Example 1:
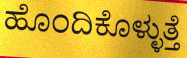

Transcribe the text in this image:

ಹೊಂದಿಕೊಳ್ಳುತ್ತೆ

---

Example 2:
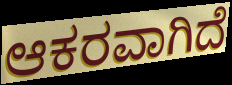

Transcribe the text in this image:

ಆಕರವಾಗಿದೆ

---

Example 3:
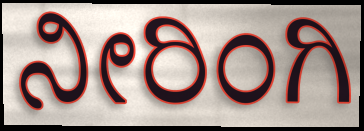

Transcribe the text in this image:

ನೀರಿಂಗಿ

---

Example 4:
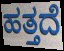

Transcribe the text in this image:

ಹತ್ತದೆ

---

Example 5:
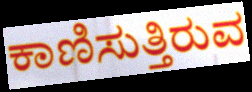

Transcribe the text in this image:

ಕಾಣಿಸುತ್ತಿರುವ